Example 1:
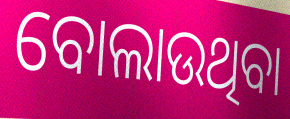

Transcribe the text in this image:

ବୋଲାଉଥିବା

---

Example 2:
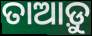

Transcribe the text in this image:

ତାଆଡ଼ୁ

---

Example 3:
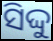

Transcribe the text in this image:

ସିଦ୍ଦୁ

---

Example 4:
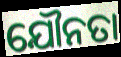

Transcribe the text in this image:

ଯୌନତା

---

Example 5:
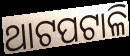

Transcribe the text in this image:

ଥାଟପଟାଳି